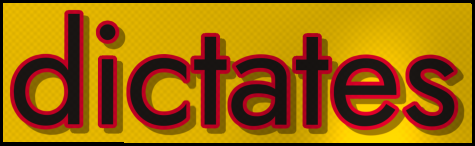
dictates